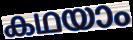
കഥയാം